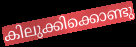
കിലുക്കിക്കൊണ്ടു